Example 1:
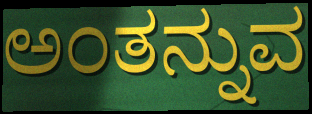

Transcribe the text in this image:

ಅಂತನ್ನುವ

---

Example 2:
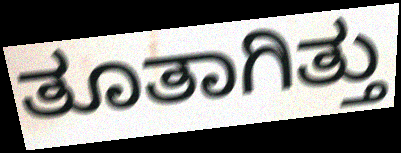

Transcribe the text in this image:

ತೂತಾಗಿತ್ತು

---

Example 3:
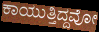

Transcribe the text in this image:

ಕಾಯುತ್ತಿದ್ದವೋ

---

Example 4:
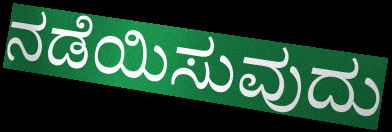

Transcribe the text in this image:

ನಡೆಯಿಸುವುದು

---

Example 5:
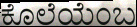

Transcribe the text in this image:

ಕೊಲೆಯೆಂಬ